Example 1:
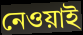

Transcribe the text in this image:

নেওয়াই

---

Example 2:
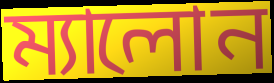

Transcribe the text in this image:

ম্যালোন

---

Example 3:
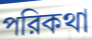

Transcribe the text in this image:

পরিকথা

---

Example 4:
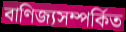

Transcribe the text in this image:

বাণিজ্যসম্পর্কিত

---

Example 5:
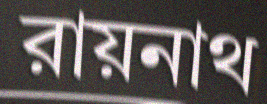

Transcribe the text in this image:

রায়নাথ